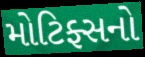
મોટિફ્સનો